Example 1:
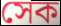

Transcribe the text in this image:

সেক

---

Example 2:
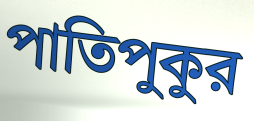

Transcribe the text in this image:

পাতিপুকুর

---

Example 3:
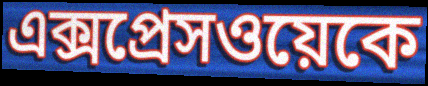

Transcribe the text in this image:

এক্সপ্রেসওয়েকে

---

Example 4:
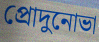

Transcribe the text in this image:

প্রোদুনোভা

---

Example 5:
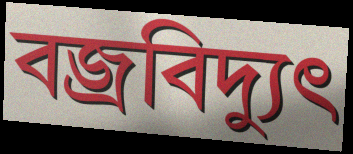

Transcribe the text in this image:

বজ্রবিদ্যুৎ